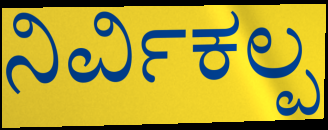
ನಿರ್ವಿಕಲ್ಪ